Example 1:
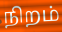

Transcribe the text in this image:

நிறம்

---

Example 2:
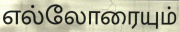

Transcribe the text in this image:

எல்லோரையும்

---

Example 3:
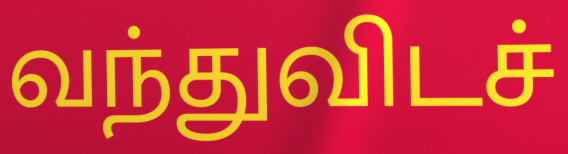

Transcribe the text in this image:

வந்துவிடச்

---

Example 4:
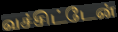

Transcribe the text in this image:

வச்சிட்டேன்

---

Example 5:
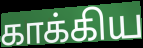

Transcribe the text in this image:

காக்கிய